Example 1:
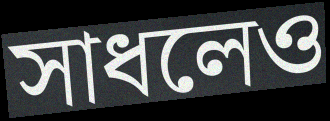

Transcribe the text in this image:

সাধলেও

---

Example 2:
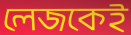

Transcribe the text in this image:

লেজকেই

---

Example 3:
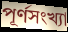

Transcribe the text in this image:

পূর্ণসংখ্যা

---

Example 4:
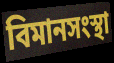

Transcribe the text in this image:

বিমানসংস্থা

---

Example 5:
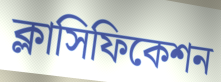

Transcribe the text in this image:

ক্লাসিফিকেশন